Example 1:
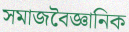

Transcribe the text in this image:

সমাজবৈজ্ঞানিক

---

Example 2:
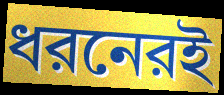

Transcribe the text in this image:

ধরনেরই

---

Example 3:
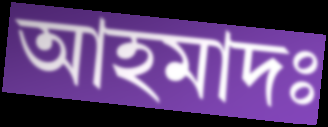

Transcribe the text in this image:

আহমাদঃ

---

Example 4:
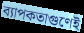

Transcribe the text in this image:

ব্যাপকতাগুণেই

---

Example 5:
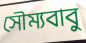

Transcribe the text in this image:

সৌম্যবাবু